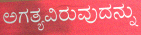
ಅಗತ್ಯವಿರುವುದನ್ನು